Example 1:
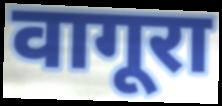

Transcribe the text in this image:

वागूरा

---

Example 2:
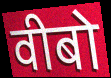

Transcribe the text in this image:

वीबो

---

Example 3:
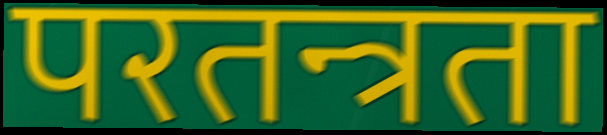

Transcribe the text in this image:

परतन्त्रता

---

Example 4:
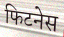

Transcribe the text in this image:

फिटनेस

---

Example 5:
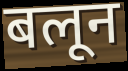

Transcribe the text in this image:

बलून